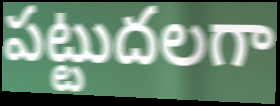
పట్టుదలగా